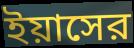
ইয়াসের